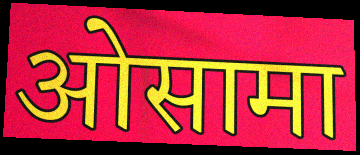
ओसामा